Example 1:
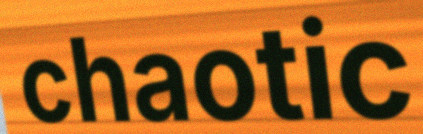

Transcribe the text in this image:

chaotic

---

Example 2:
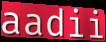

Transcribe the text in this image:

aadii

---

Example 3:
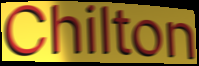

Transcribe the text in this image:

Chilton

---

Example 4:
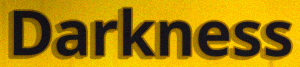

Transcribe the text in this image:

Darkness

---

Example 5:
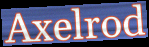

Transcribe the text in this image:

Axelrod